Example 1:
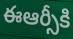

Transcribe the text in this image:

ఈఆర్సీకి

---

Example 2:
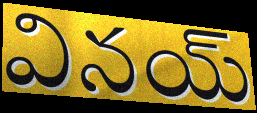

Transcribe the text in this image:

వినయ్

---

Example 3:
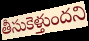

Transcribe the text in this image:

తీసుకెళ్తుందని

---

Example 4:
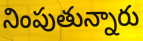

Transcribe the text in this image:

నింపుతున్నారు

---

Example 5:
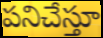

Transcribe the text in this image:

పనిచేస్తూ